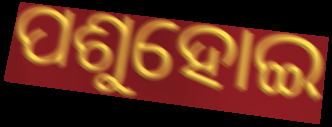
ପଶୁହୋଇ